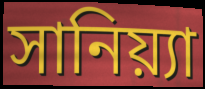
সানিয়্যা